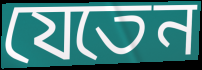
যেতেন